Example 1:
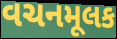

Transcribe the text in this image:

વચનમૂલક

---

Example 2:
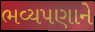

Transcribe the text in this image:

ભવ્યપણાને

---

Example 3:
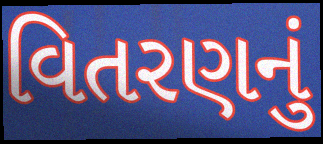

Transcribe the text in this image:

વિતરણનું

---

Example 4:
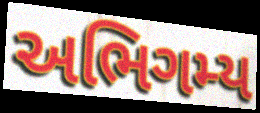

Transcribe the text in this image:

અભિગમ્ય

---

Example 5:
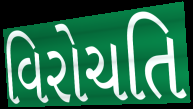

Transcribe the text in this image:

વિરોચતિ